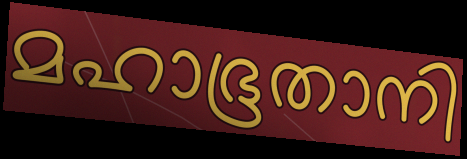
മഹാഭൂതാനി